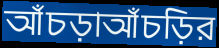
আঁচড়াআঁচড়ির